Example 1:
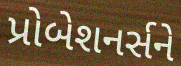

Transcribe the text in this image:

પ્રોબેશનર્સને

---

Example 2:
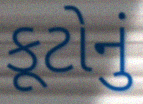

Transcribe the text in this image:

કૂટોનું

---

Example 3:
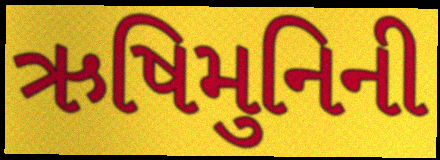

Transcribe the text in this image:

ઋષિમુનિની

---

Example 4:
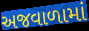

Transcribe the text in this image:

અજવાળામાં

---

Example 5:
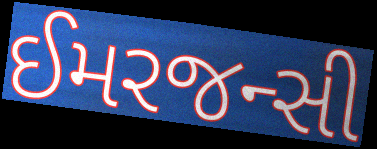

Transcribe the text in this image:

ઈમરજન્સી